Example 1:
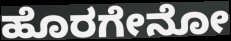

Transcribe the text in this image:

ಹೊರಗೇನೋ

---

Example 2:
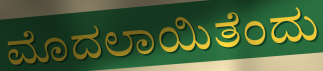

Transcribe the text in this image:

ಮೊದಲಾಯಿತೆಂದು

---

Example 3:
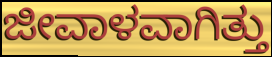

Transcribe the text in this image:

ಜೀವಾಳವಾಗಿತ್ತು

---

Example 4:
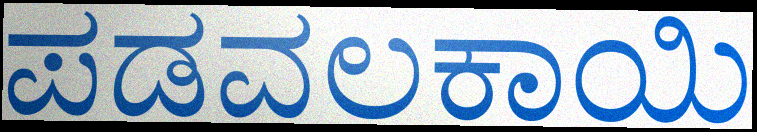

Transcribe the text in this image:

ಪಡವಲಕಾಯಿ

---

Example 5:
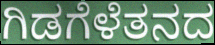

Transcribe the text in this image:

ಗಿಡಗೆಳೆತನದ